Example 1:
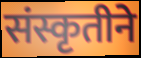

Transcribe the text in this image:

संस्कृतीने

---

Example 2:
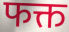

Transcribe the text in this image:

फक्त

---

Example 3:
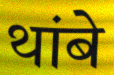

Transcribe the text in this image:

थांबे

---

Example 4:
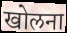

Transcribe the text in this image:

खोलना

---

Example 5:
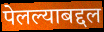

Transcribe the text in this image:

पेलल्याबद्दल